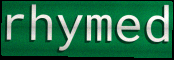
rhymed